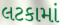
લટકામાં